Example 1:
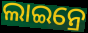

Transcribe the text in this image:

ଲାଇନ୍ରେ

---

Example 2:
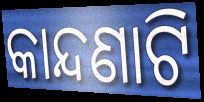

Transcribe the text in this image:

କାନ୍ଦଣାଟି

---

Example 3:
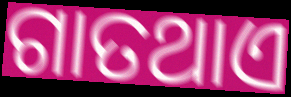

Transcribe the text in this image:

ଗାତଥାଏ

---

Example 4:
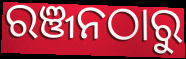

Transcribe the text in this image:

ରଞ୍ଜନଠାରୁ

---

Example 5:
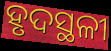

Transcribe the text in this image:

ହୃଦସ୍ଥଳୀ